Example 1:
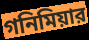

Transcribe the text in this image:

গনিমিয়ার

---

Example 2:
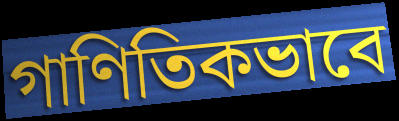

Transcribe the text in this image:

গাণিতিকভাবে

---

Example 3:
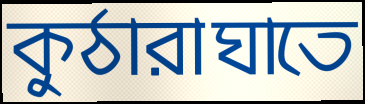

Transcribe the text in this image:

কুঠারাঘাতে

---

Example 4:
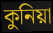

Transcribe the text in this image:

কুনিয়া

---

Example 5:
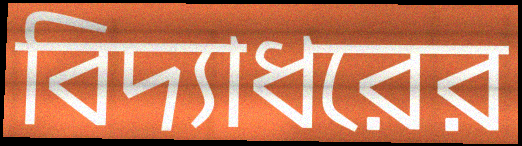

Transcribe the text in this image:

বিদ্যাধরের